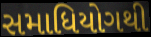
સમાધિયોગથી